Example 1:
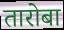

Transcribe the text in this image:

तारोबा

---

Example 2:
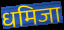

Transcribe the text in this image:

धमिजा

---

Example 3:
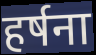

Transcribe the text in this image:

हर्षना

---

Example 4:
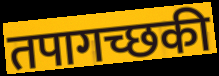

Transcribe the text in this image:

तपागच्छकी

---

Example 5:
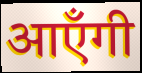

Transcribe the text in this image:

आएँगी